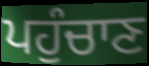
ਪਹੁੰਚਾਣ